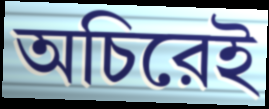
অচিরেই